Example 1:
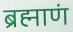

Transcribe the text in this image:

ब्रह्माणं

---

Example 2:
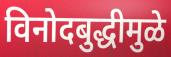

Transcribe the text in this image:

विनोदबुद्धीमुळे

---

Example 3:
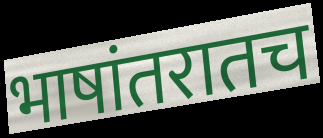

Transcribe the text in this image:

भाषांतरातच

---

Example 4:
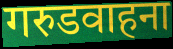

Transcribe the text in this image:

गरुडवाहना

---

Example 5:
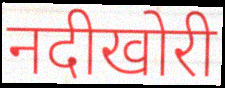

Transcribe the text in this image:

नदीखोरी